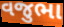
વજુભા